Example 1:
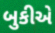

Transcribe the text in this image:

બુકીએ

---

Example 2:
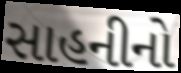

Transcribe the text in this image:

સાહનીનો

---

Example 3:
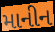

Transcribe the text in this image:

માનીન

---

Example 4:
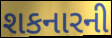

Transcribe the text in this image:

શકનારની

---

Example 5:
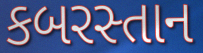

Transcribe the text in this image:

કબરસ્તાન